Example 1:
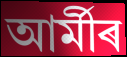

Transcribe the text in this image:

আৰ্মীৰ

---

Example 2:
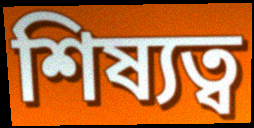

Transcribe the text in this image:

শিষ্যত্ব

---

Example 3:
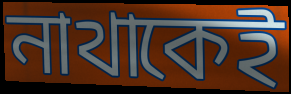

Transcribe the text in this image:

নাথাকেই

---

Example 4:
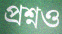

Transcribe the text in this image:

প্ৰশ্নও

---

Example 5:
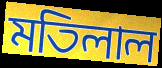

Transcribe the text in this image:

মতিলাল